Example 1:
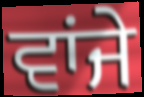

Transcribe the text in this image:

ਵਾਂਜੇ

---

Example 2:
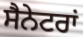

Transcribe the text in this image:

ਸੈਨੇਟਰਾਂ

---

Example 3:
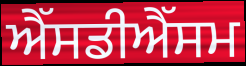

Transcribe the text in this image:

ਐੱਸਡੀਐੱਸਮ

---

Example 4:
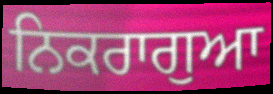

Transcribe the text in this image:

ਨਿਕਰਾਗੁਆ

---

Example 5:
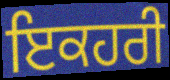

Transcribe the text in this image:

ਇਕਹਰੀ